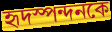
হৃদস্পন্দনকে